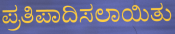
ಪ್ರತಿಪಾದಿಸಲಾಯಿತು